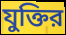
যুক্তির